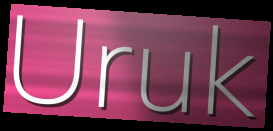
Uruk